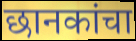
छानकांचा